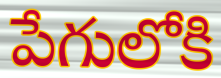
పేగులోకి